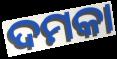
ଦମକା